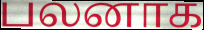
பலனாக